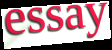
essay